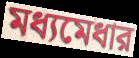
মধ্যমেধার